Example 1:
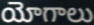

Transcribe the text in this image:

యోగాలు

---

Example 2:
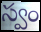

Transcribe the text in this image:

స్వం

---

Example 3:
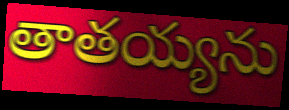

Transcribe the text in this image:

తాతయ్యను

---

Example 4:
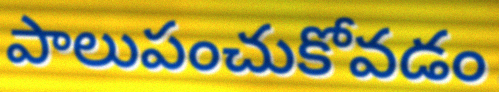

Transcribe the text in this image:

పాలుపంచుకోవడం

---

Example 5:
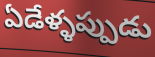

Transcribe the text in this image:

ఏడేళ్ళప్పుడు